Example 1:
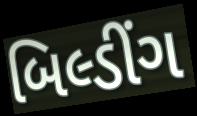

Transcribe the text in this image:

બિલ્ડીંગ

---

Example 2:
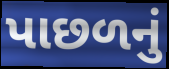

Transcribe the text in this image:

પાછળનું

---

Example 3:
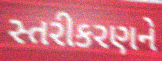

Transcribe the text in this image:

સ્તરીકરણને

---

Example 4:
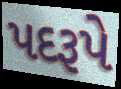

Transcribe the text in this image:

પદરૂપે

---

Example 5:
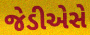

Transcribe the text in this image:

જેડીએસે